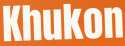
Khukon